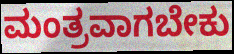
ಮಂತ್ರವಾಗಬೇಕು